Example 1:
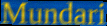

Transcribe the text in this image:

Mundari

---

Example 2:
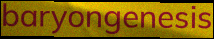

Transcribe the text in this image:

baryongenesis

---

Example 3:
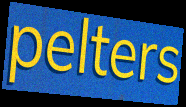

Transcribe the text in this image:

pelters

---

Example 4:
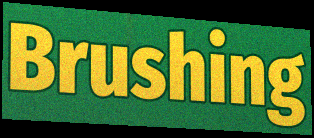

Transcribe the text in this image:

Brushing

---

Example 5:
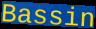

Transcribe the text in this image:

Bassin